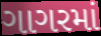
ગાગરમાં